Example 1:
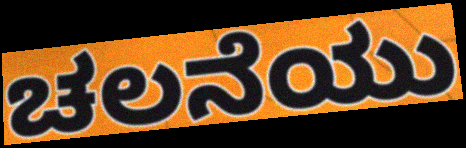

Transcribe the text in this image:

ಚಲನೆಯು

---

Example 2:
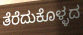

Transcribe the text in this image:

ತೆರೆದುಕೊಳ್ಳದ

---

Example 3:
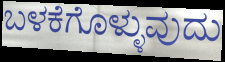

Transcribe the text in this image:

ಬಳಕೆಗೊಳ್ಳುವುದು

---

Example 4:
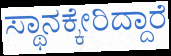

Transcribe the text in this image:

ಸ್ಥಾನಕ್ಕೇರಿದ್ದಾರೆ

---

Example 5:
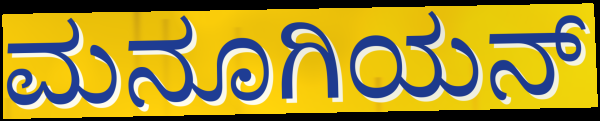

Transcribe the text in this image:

ಮನೂಗಿಯನ್